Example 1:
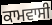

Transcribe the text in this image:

ਕਾਮਵਾਸੀ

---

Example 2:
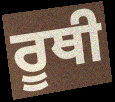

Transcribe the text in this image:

ਰੂਥੀ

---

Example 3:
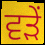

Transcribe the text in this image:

ਵੜੇਂ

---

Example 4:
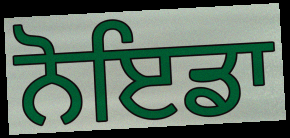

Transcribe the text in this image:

ਨੋਇਡਾ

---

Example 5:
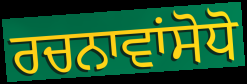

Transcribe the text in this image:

ਰਚਨਾਵਾਂਸੋਧੋ